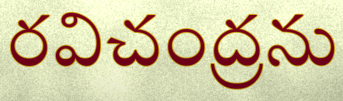
రవిచంద్రను